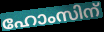
ഹോംസിന്